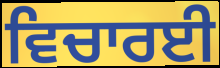
ਵਿਚਾਰਈ